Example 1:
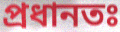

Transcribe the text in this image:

প্রধানতঃ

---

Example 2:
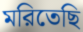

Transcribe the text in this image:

মরিতেছি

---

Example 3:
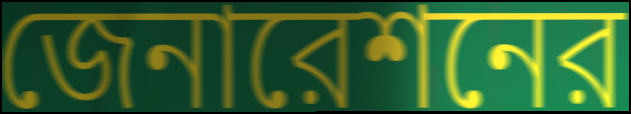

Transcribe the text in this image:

জেনারেশনের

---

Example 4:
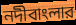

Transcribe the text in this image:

নদীবাংলার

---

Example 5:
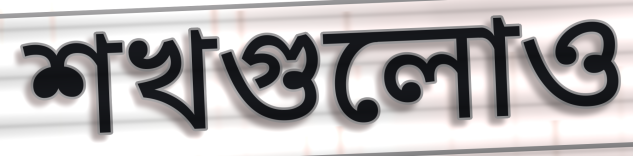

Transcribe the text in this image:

শখগুলোও